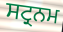
ਸਟ੍ਰਨਮ